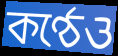
কণ্ঠেও